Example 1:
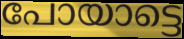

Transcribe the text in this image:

പോയാട്ടെ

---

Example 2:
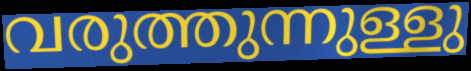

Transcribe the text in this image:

വരുത്തുന്നുള്ളു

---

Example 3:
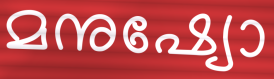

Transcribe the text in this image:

മനുഷ്യോ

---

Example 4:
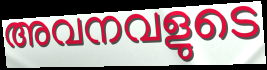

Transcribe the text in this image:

അവനവളുടെ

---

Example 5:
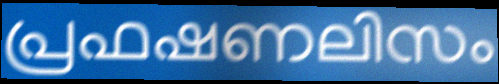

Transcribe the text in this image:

പ്രഫഷണലിസം